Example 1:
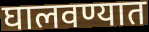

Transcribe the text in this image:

घालवण्यात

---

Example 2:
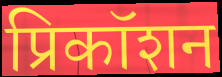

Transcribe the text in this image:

प्रिकॉशन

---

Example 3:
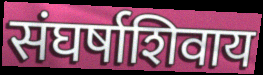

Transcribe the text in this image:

संघर्षाशिवाय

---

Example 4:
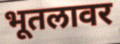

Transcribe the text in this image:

भूतलावर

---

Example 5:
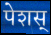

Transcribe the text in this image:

पेशस्